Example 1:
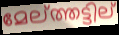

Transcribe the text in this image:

മേല്ത്തട്ടില്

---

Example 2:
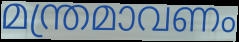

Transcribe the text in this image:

മന്ത്രമാവണം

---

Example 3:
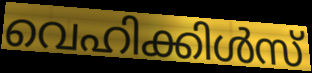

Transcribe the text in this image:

വെഹിക്കിൾസ്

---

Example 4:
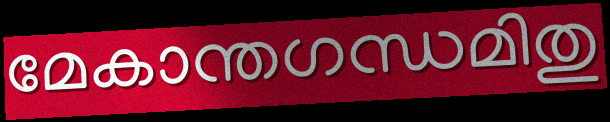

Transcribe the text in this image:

മേകാന്തഗന്ധമിതു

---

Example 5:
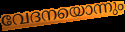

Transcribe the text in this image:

വേദനയൊന്നും